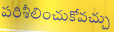
పరిశీలించుకోవచ్చు